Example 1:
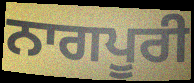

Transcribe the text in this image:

ਨਾਗਪੂਰੀ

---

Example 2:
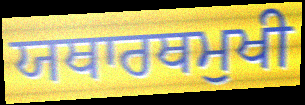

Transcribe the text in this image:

ਯਥਾਰਥਮੁਖੀ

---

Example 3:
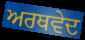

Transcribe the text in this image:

ਅਰਥਵੇਦ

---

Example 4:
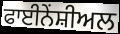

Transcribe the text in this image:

ਫਾਈਨੇਂਸ਼ੀਅਲ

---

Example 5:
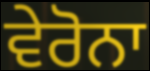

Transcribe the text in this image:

ਵੇਰੋਨਾ